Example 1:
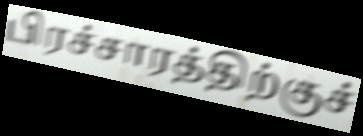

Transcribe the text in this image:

பிரச்சாரத்திற்குச்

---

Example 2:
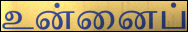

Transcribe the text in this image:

உன்னைப்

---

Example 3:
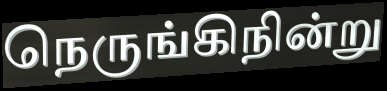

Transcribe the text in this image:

நெருங்கிநின்று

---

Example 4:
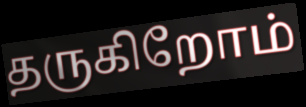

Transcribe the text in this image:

தருகிறோம்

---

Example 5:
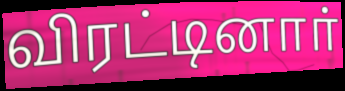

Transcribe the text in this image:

விரட்டினார்